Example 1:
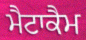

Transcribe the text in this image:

ਮੈਟਾਕੈਮ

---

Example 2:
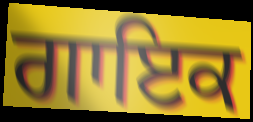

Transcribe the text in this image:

ਗਾਇਕ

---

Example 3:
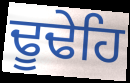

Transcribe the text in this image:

ਢੂਢੇਹਿ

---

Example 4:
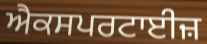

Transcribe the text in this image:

ਐਕਸਪਰਟਾਈਜ਼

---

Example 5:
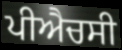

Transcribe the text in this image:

ਪੀਐਚਸੀ